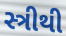
સ્ત્રીથી